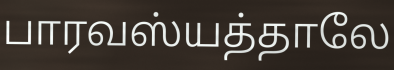
பாரவஸ்யத்தாலே